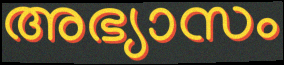
അഭ്യാസം